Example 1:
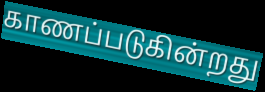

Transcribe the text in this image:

காணப்படுகின்றது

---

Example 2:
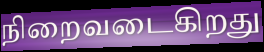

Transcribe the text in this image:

நிறைவடைகிறது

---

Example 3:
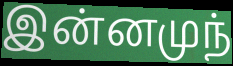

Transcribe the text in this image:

இன்னமுந்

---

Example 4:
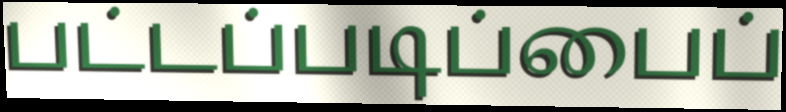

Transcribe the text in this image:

பட்டப்படிப்பைப்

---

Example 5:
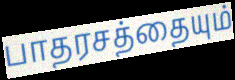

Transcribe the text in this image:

பாதரசத்தையும்